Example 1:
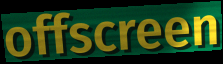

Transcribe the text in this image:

offscreen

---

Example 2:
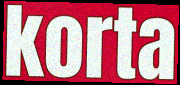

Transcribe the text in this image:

korta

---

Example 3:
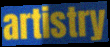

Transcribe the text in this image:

artistry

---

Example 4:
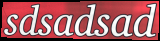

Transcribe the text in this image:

sdsadsad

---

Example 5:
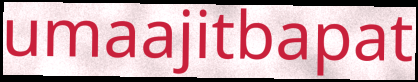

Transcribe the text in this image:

umaajitbapat